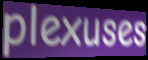
plexuses